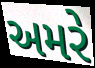
અમરે